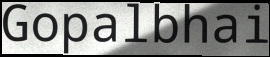
Gopalbhai